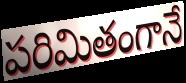
పరిమితంగానే